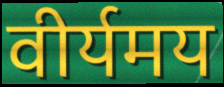
वीर्यमय